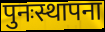
पुनःस्थापना